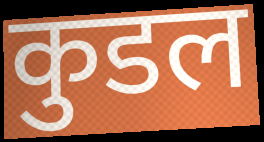
कुडल